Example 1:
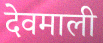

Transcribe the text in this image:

देवमाली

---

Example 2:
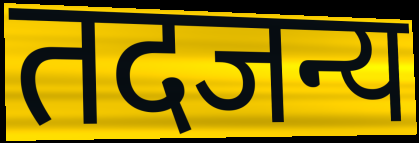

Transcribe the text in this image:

तदजन्य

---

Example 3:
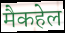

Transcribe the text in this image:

मैकहेल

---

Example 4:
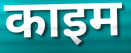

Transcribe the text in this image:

काइम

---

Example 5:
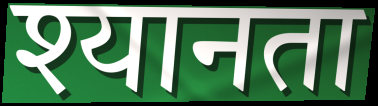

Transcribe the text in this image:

श्यानता